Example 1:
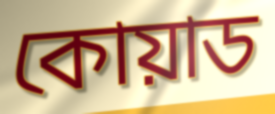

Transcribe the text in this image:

কোয়াড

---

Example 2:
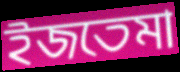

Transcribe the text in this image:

ইজতেমা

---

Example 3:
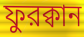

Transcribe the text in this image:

ফুরক্বান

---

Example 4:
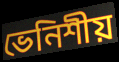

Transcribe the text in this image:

ভেনিশীয়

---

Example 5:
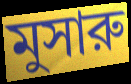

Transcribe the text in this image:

মুসারু